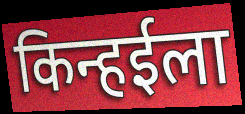
किन्हईला